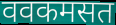
ववकमसत